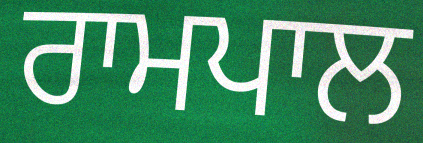
ਰਾਮਪਾਲ